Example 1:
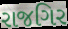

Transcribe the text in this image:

રાજગિર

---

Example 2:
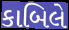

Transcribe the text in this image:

કાબિલે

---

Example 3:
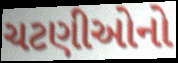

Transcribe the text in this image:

ચટણીઓનો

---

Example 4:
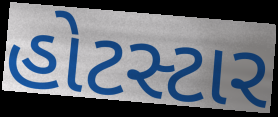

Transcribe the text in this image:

હોટસ્ટાર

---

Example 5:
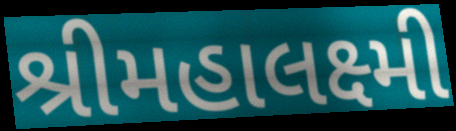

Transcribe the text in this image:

શ્રીમહાલક્ષ્મી